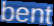
bent